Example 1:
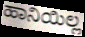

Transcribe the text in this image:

ಹಾನಿಯಿಲ್ಲ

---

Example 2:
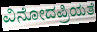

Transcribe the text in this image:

ವಿನೋದಪ್ರಿಯತೆ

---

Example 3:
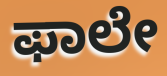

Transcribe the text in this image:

ಫಾಲೇ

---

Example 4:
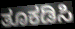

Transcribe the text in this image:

ತೂಕಡಿಸಿ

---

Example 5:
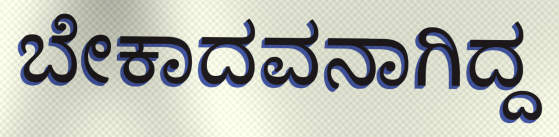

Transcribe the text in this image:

ಬೇಕಾದವನಾಗಿದ್ದ